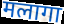
मलागा